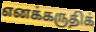
எனக்கருதிக்